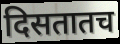
दिसतातच